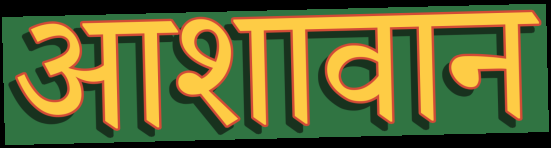
आशावान